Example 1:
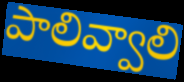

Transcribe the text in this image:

పాలివ్వాలి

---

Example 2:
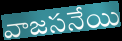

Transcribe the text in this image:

వాజసనేయి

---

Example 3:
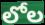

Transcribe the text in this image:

లోల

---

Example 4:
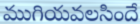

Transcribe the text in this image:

ముగియవలసిందే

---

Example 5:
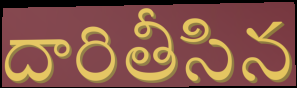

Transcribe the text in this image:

దారితీసిన